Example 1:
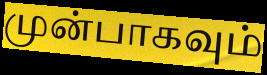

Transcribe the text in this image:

முன்பாகவும்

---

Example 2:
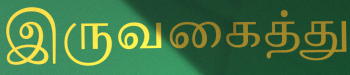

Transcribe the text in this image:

இருவகைத்து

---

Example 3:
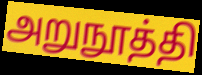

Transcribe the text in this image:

அறுநூத்தி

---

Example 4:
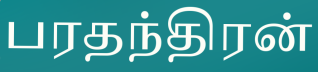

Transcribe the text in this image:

பரதந்திரன்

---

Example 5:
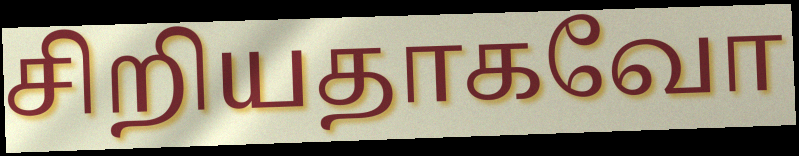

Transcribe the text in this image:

சிறியதாகவோ